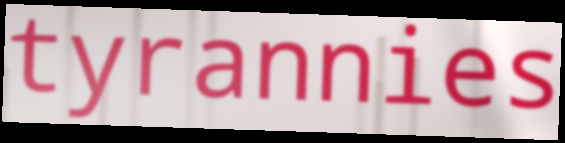
tyrannies